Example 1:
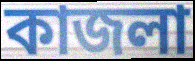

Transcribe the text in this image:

কাজলা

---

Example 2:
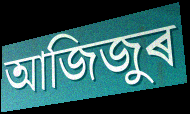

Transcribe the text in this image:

আজিজুৰ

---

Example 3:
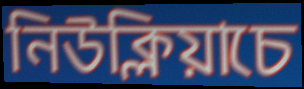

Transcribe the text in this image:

নিউক্লিয়াচে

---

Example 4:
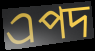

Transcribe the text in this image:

এপদ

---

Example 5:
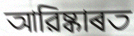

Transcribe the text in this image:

আৱিষ্কাৰত